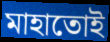
মাহাতোই